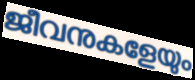
ജീവനുകളേയും